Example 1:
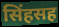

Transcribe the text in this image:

सिंहसह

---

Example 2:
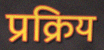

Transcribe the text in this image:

प्रक्रिय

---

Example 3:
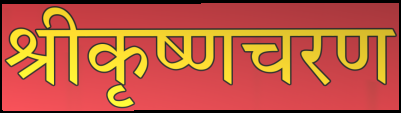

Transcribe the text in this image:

श्रीकृष्णचरण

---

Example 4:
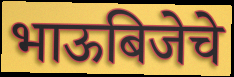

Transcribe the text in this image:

भाऊबिजेचे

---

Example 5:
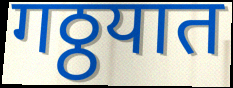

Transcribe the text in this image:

गठ्ठयात